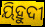
ୟିହୁଦୀ